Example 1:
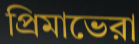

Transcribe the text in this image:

প্রিমাভেরা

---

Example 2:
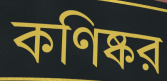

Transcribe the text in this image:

কণিষ্কর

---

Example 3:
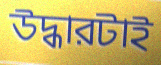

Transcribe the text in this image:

উদ্ধারটাই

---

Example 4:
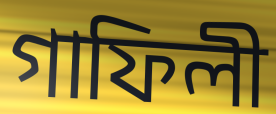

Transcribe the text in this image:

গাফিলী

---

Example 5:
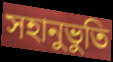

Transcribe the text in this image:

সহানুভুতি